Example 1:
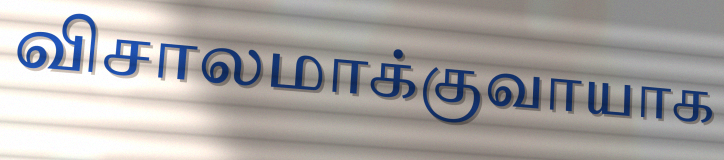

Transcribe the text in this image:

விசாலமாக்குவாயாக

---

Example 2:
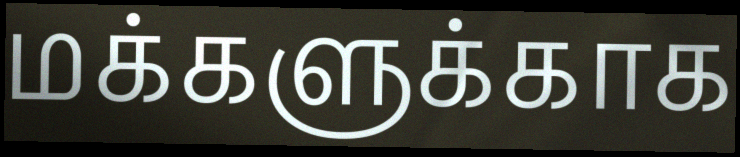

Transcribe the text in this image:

மக்களுக்காக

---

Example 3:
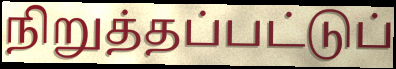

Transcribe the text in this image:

நிறுத்தப்பட்டுப்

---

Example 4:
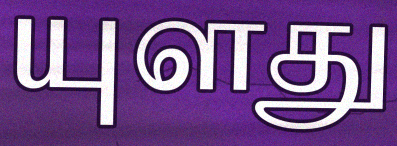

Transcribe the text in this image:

யுளது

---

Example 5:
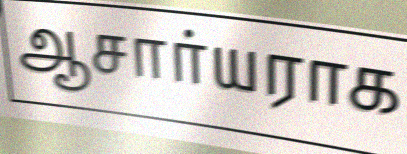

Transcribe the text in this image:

ஆசார்யராக